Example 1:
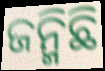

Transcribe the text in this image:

ଜନ୍ମିଛି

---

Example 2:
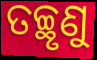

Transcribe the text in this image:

ତଚ୍ଛୃଣୁ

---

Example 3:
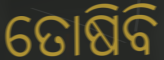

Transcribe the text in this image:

ତୋଷିବି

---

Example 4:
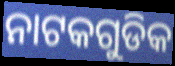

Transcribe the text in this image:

ନାଟକଗୁଡିକ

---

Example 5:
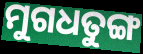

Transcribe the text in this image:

ମୁଗଧତୁଙ୍ଗ